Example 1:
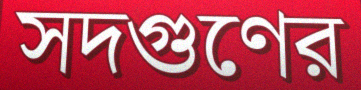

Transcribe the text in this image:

সদগুণের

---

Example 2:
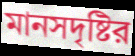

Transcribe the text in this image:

মানসদৃষ্টির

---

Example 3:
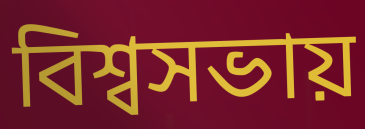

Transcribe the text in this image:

বিশ্বসভায়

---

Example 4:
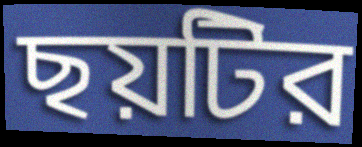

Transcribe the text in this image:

ছয়টির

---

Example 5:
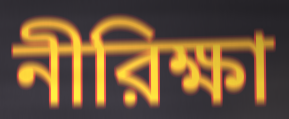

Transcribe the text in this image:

নীরিক্ষা